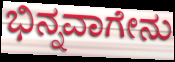
ಭಿನ್ನವಾಗೇನು